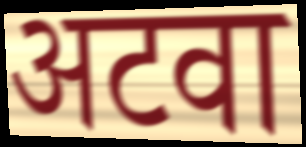
अटवा